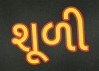
શૂળી